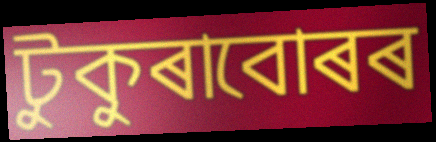
টুকুৰাবোৰৰ